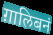
ग़ालिबनं